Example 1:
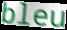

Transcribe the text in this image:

bleu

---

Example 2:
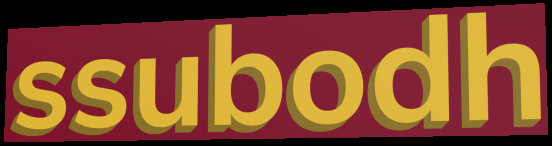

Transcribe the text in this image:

ssubodh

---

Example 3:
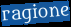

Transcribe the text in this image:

ragione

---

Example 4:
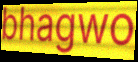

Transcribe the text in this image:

bhagwo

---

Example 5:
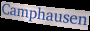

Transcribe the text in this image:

Camphausen